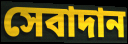
সেবাদান